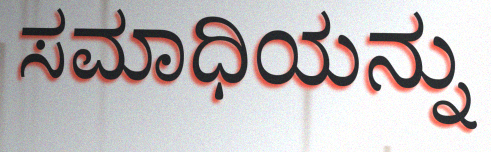
ಸಮಾಧಿಯನ್ನು